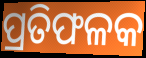
ପ୍ରତିଫଳକ